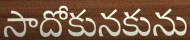
సాదోకునకును